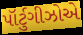
પૉર્ટુગીઝોએ